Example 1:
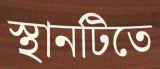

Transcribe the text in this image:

স্থানটিতে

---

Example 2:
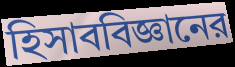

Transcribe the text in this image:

হিসাববিজ্ঞানের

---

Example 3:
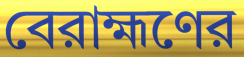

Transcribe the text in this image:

বেরাহ্মণের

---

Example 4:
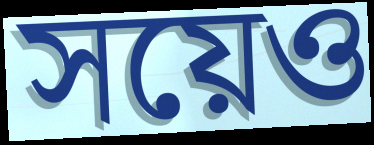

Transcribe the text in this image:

সয়েও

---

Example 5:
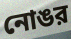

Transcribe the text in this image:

নোঙর